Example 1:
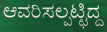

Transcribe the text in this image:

ಆವರಿಸಲ್ಪಟ್ಟಿದ್ದ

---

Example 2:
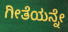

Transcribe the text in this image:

ಗೀತೆಯನ್ನೇ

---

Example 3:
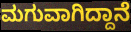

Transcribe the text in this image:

ಮಗುವಾಗಿದ್ದಾನೆ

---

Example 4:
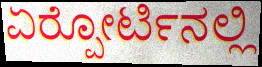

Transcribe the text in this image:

ಏರ್‍ಪೋರ್ಟಿನಲ್ಲಿ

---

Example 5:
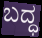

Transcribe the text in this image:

ಬದ್ಧ